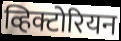
व्हिक्टोरियन